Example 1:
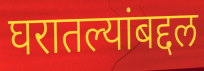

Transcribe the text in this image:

घरातल्यांबद्दल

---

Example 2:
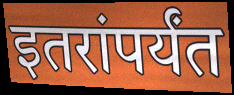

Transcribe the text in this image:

इतरांपर्यंत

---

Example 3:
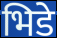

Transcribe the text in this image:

भिडे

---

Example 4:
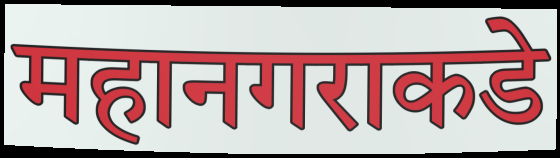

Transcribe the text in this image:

महानगराकडे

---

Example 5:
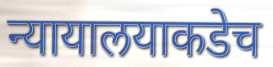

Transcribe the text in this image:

न्यायालयाकडेच